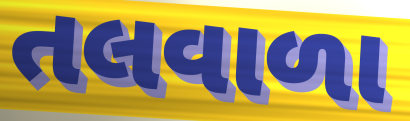
તલવાળા